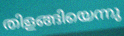
തിളങ്ങിയെന്നു